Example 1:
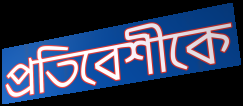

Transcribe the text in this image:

প্রতিবেশীকে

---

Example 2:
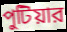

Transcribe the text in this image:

পুটিয়ার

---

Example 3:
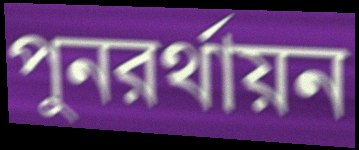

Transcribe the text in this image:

পুনরর্থায়ন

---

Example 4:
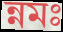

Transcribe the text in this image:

ন্নমঃ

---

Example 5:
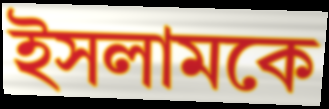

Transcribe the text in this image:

ইসলামকে